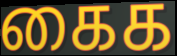
கைக